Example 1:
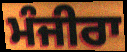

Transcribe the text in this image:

ਮੰਜੀਰਾ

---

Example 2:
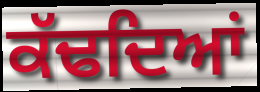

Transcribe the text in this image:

ਕੱਢਦਿਆਂ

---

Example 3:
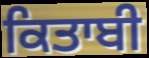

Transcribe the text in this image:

ਕਿਤਾਬੀ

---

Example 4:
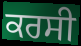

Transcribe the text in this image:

ਕਰਸੀ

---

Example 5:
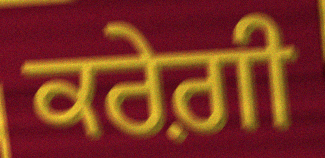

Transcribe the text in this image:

ਕਰੇਗ਼ੀ